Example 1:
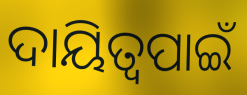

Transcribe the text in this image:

ଦାୟିତ୍ୱପାଇଁ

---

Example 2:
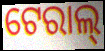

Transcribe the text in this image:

ଟେରାଲ୍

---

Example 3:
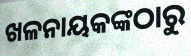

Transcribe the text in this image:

ଖଳନାୟକଙ୍କଠାରୁ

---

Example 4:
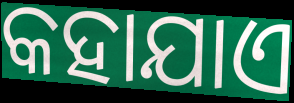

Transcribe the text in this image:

କହାଯାଏ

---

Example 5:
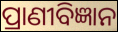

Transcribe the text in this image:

ପ୍ରାଣୀବିଜ୍ଞାନ